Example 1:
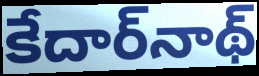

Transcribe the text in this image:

కేదార్‌నాథ్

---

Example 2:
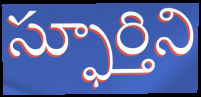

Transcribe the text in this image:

స్ఫూర్తిని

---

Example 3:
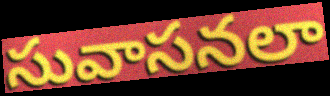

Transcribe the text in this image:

సువాసనలా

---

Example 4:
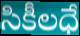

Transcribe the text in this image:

సికీలధే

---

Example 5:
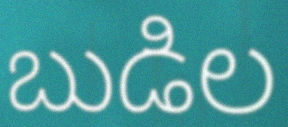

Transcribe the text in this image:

బుడిల